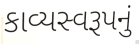
કાવ્યસ્વરૂપનું